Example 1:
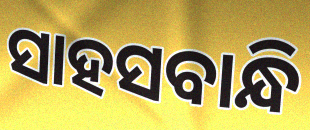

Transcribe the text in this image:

ସାହସବାନ୍ଧି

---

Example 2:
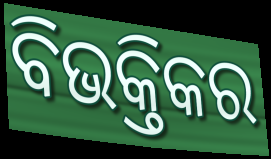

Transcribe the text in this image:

ବିଭକ୍ତିକର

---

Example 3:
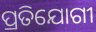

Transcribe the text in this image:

ପ୍ରତିଯୋଗୀ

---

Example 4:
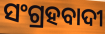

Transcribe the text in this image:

ସଂଗ୍ରହବାଦୀ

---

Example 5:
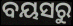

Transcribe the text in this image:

ବୟସରୁ